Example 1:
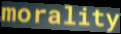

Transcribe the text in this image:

morality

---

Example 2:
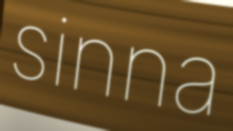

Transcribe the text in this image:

sinna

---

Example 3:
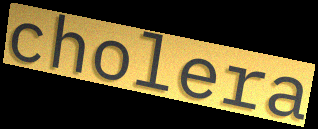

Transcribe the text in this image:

cholera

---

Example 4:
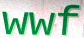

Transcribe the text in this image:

wwf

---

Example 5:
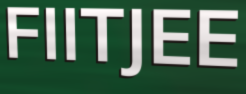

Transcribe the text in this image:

FIITJEE